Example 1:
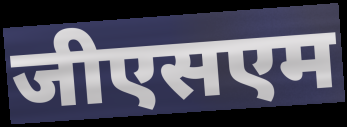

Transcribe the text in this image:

जीएसएम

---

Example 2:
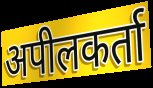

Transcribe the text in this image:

अपीलकर्ता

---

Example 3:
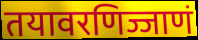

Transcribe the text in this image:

तयावरणिज्जाणं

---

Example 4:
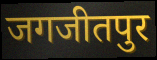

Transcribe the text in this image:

जगजीतपुर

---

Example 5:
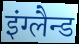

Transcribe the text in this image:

इंग्लैन्ड